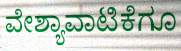
ವೇಶ್ಯಾವಾಟಿಕೆಗೂ